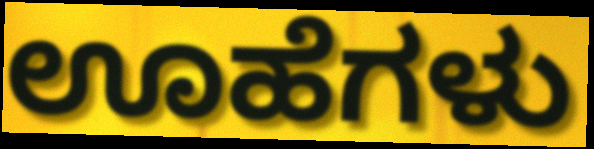
ಊಹೆಗಳು